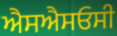
ਐਸਐਸਓਸੀ